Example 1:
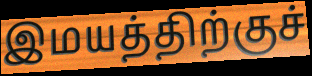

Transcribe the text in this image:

இமயத்திற்குச்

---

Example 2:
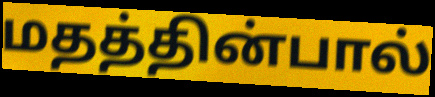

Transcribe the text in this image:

மதத்தின்பால்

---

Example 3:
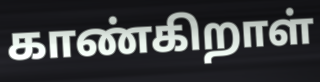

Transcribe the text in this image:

காண்கிறாள்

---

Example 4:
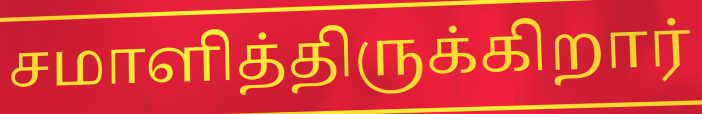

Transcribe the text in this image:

சமாளித்திருக்கிறார்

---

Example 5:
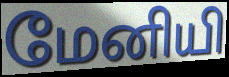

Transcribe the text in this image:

மேனியி